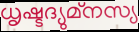
ധൃഷ്ടദ്യുമ്നസ്യ